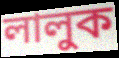
লালুক